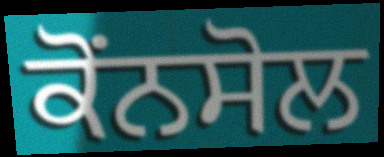
ਕੋਂਨਸੋਲ